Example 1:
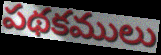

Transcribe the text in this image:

పథకములు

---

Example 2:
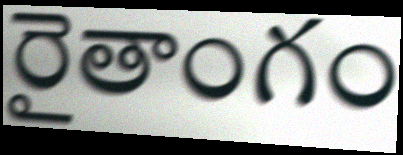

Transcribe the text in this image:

రైతాంగం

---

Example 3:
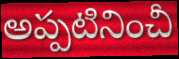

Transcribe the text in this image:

అప్పటినించీ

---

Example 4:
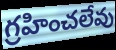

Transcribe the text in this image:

గ్రహించలేవు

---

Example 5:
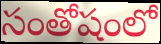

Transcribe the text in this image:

సంతోషంలో